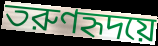
তরুণহৃদয়ে